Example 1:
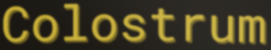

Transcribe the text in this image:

Colostrum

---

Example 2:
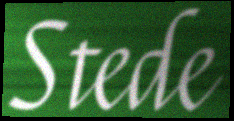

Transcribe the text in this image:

Stede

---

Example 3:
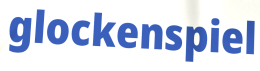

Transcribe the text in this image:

glockenspiel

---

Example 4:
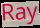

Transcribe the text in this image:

Ray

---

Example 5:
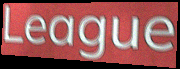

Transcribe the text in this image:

League